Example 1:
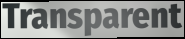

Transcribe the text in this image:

Transparent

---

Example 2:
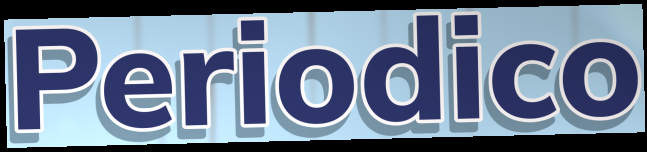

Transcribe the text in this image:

Periodico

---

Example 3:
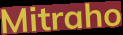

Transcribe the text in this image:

Mitraho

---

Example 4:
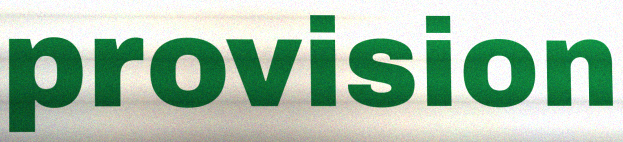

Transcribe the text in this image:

provision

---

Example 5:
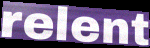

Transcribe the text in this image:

relent